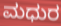
ಮಧುರ